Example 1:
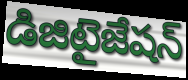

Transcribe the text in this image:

డిజిటైజేషన్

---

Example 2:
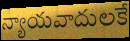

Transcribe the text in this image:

న్యాయవాదులకే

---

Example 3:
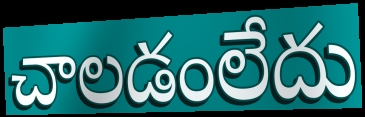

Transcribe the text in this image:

చాలడంలేదు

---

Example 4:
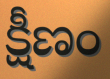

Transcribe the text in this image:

క్షీణం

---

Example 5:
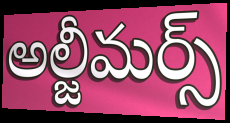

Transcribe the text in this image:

అల్జీమర్స్